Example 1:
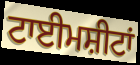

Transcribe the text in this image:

ਟਾਈਮਸ਼ੀਟਾਂ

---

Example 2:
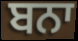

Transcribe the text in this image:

ਬਨਾ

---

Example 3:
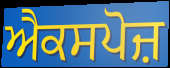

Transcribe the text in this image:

ਐਕਸਪੋਜ਼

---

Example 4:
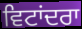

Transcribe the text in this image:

ਵਿਟਾਂਦਰਾ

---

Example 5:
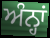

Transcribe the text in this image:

ਅੰਨ੍ਹਾਂ